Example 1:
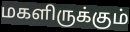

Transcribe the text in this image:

மகளிருக்கும்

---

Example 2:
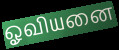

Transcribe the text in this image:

ஓவியனை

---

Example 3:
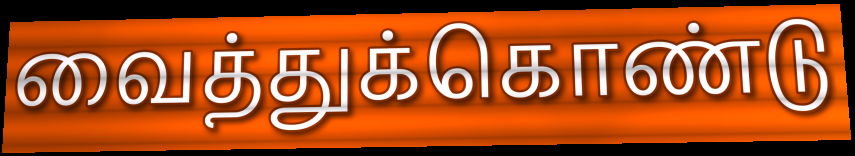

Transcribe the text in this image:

வைத்துக்கொண்டு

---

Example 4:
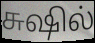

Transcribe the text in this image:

சுஷில்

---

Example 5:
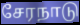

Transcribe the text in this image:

சேரநாடு